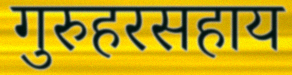
गुरुहरसहाय